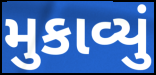
મુકાવ્યું